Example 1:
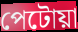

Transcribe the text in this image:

পেটোয়া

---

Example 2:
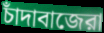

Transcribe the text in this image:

চাঁদাবাজেরা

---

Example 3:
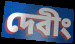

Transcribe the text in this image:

দেবীং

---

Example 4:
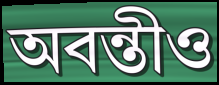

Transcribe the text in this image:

অবন্তীও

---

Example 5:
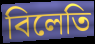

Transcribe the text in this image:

বিলেতি